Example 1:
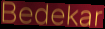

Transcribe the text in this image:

Bedekar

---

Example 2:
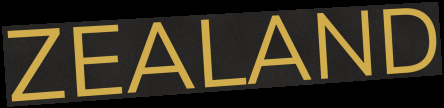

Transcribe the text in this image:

ZEALAND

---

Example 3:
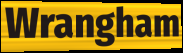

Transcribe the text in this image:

Wrangham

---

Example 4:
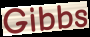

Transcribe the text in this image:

Gibbs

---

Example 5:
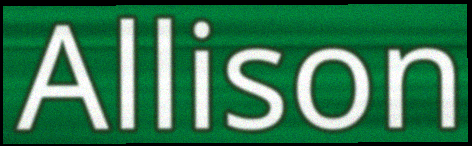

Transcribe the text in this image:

Allison